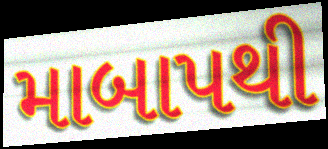
માબાપથી